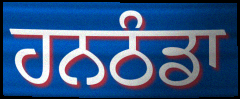
ਹਨਠੰਡਾ